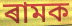
ৰামক